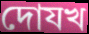
দোযখ